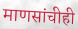
माणसांचीही